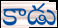
కాడు